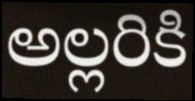
అల్లరికి